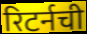
रिटर्नची